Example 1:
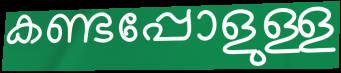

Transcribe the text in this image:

കണ്ടപ്പോളുള്ള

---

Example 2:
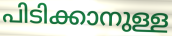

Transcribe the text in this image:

പിടിക്കാനുള്ള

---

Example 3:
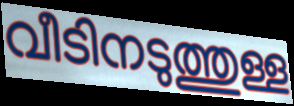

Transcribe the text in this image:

വീടിനടുത്തുള്ള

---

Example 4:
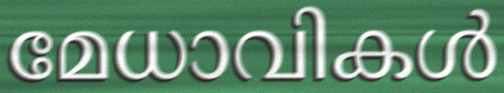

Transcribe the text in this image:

മേധാവികൾ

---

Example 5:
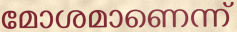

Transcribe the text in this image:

മോശമാണെന്ന്